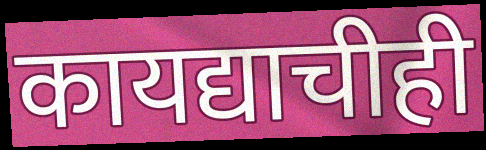
कायद्याचीही